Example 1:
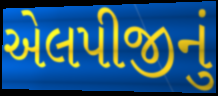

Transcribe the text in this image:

એલપીજીનું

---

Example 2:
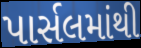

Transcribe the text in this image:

પાર્સલમાંથી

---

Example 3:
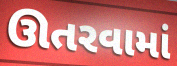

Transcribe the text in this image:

ઊતરવામાં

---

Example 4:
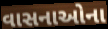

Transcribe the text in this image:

વાસનાઓના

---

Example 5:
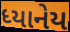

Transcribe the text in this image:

ધ્યાનેય